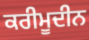
ਕਰੀਮੂਦੀਨ